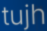
tujh